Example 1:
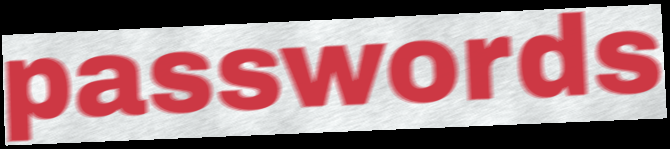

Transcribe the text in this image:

passwords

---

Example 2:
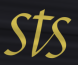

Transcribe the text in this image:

sts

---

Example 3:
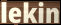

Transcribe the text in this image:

lekin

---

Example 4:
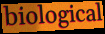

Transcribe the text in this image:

biological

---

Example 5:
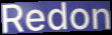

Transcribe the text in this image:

Redon